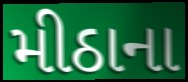
મીઠાના